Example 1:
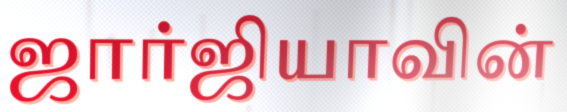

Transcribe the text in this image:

ஜார்ஜியாவின்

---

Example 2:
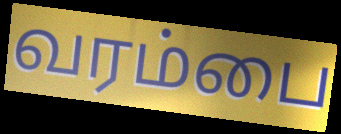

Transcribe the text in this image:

வரம்பை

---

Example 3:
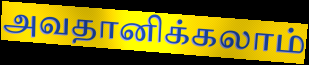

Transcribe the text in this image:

அவதானிக்கலாம்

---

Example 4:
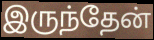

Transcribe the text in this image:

இருந்தேன்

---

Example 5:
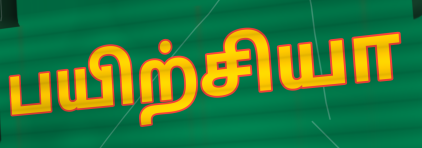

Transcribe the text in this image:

பயிற்சியா